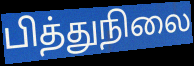
பித்துநிலை